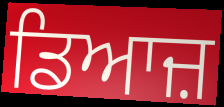
ਡਿਆਜ਼